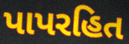
પાપરહિત